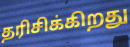
தரிசிக்கிறது